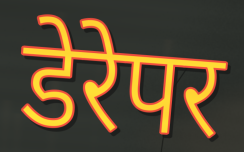
डेरेपर